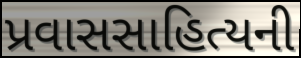
પ્રવાસસાહિત્યની